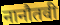
नानौतवी